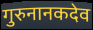
गुरुनानकदेव